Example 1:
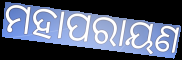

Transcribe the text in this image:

ମହାପରାୟଣ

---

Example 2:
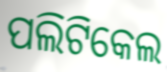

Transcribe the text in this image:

ପଲିଟିକେଲ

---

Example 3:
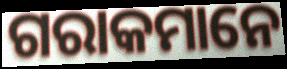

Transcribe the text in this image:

ଗରାକମାନେ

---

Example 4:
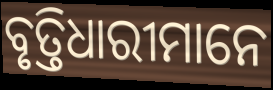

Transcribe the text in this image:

ବୃତ୍ତିଧାରୀମାନେ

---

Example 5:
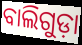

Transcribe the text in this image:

ବାଲିଗୁଡ଼ା